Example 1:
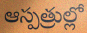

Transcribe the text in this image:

ఆస్పత్రుల్లో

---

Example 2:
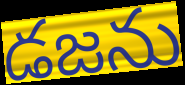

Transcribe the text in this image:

డజను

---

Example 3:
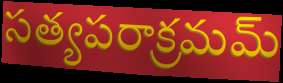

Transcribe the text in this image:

సత్యపరాక్రమమ్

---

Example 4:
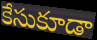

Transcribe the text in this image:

కేసుకూడా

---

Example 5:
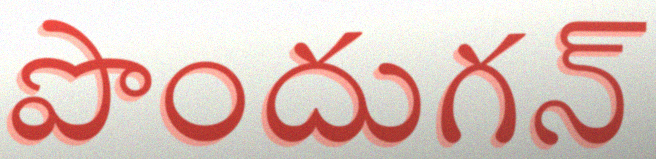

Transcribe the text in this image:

పొందుగన్